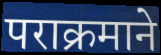
पराक्रमाने